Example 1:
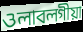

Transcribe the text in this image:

ওলাবলগীয়া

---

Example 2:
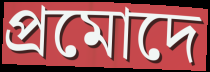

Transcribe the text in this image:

প্ৰমোদে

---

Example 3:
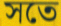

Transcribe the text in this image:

সতে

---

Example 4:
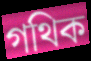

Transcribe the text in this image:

গথিক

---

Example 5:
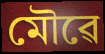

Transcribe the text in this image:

মৌৱে